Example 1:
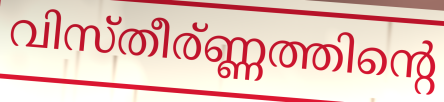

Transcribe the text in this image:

വിസ്തീര്ണ്ണത്തിന്റെ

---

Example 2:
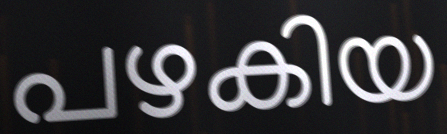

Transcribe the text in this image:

പഴകിയ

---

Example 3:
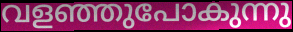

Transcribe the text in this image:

വളഞ്ഞുപോകുന്നു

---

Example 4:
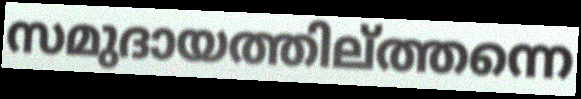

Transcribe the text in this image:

സമുദായത്തില്ത്തന്നെ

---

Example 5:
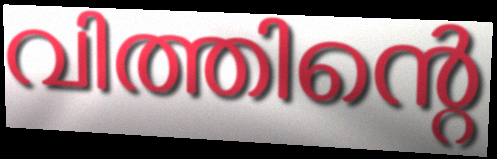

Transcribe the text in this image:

വിത്തിന്റെ